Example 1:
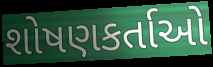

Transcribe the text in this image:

શોષણકર્તાઓ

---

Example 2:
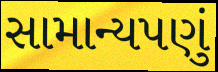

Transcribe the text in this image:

સામાન્યપણું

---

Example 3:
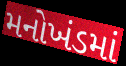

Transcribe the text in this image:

મનોખંડમાં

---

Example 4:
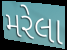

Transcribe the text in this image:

મરેલા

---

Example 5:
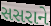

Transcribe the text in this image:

સસરાને